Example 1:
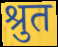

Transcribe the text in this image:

श्रुत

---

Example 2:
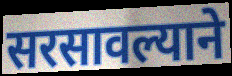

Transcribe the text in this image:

सरसावल्याने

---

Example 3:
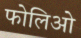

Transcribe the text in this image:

फोलिओ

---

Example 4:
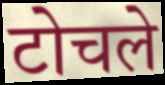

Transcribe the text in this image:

टोचले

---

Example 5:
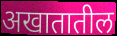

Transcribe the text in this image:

अखातातील